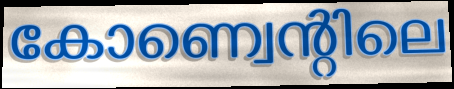
കോണ്വെന്റിലെ